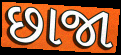
છાજા